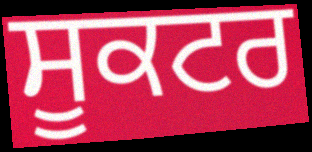
ਸੂਕਟਰ